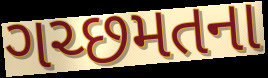
ગચ્છમતના